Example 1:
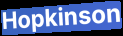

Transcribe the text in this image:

Hopkinson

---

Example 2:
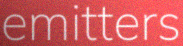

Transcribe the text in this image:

emitters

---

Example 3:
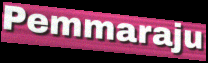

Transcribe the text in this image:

Pemmaraju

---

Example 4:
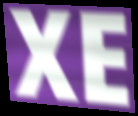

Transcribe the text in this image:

XE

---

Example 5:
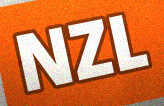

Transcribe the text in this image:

NZL